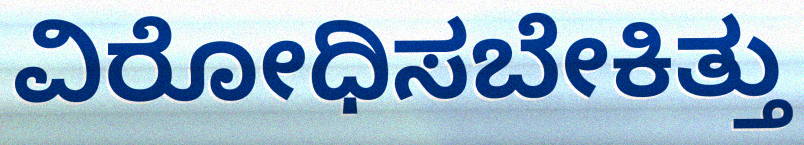
ವಿರೋಧಿಸಬೇಕಿತ್ತು